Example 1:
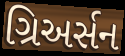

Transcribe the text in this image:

ગ્રિઅર્સન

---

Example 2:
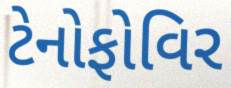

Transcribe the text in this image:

ટેનોફોવિર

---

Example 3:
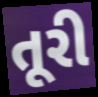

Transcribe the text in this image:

તૂરી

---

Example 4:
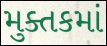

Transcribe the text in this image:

મુક્તકમાં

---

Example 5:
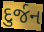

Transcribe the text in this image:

દુર્જન